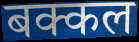
बक्कल